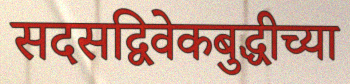
सदसद्विवेकबुद्धीच्या